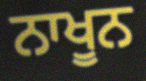
ਨਾਖੂਨ